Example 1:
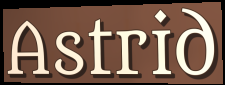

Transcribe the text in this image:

Astrid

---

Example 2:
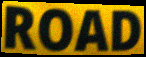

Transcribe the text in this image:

ROAD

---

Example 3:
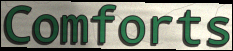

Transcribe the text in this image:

Comforts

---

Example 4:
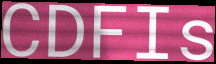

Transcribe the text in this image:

CDFIs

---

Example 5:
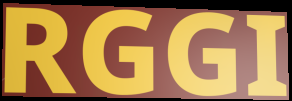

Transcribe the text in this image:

RGGI